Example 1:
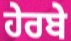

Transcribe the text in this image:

ਹੇਰਬੇ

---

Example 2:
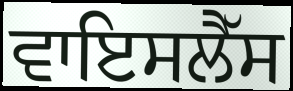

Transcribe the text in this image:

ਵਾਇਸਲੈੱਸ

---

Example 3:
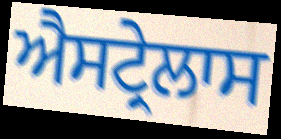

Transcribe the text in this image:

ਐਸਟ੍ਰੇਲਾਸ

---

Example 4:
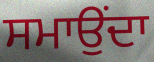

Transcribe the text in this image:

ਸਮਾਉਂਦਾ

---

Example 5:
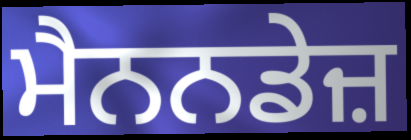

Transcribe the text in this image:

ਮੈਨਨਡੇਜ਼